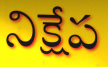
నిక్షేప